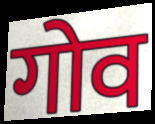
गोव